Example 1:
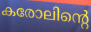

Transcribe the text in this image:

കരോലിന്റെ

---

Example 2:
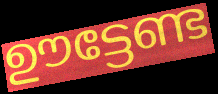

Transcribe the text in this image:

ഊട്ടേണ്ട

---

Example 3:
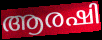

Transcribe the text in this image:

ആരഷി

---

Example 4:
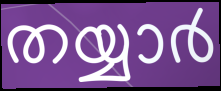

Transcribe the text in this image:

തയ്യാർ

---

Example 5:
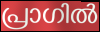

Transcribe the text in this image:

പ്രാഗിൽ